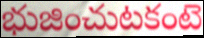
భుజించుటకంటె